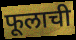
फूलाची